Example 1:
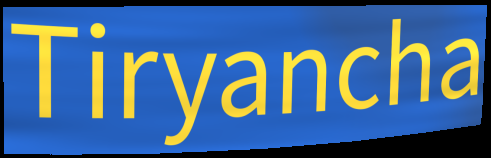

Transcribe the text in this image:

Tiryancha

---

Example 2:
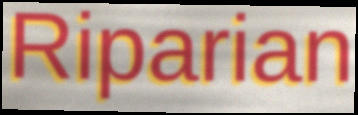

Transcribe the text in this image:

Riparian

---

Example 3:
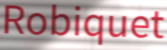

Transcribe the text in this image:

Robiquet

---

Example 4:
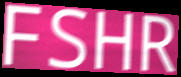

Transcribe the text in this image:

FSHR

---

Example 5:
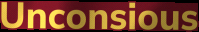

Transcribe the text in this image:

Unconsious